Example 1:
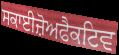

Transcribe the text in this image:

ਸਕਾਈਜ਼ੋਅਫੈਕਟਿਵ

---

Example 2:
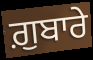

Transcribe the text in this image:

ਗ਼ੁਬਾਰੇ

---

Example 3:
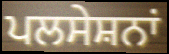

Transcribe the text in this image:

ਪਲਸੇਸ਼ਨਾਂ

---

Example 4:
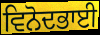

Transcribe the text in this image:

ਵਿਨੋਦਭਾਈ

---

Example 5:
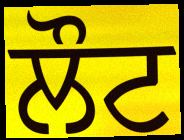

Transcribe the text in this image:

ਲੌਟ